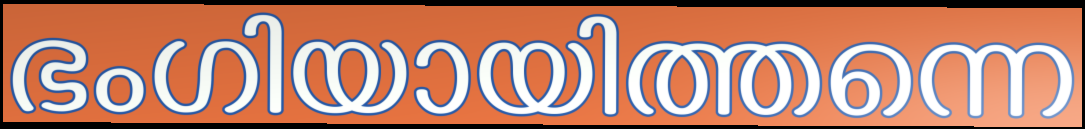
ഭംഗിയായിത്തന്നെ